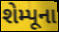
શેમ્પૂના